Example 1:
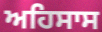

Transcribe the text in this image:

ਅਹਿਸਾਸ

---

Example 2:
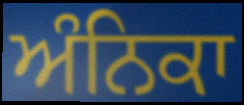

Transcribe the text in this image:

ਅੰਨਿਕਾ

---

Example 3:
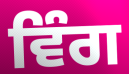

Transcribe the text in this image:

ਵਿੰਗ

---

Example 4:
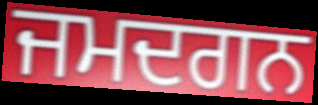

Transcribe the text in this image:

ਜਮਦਗਨ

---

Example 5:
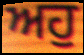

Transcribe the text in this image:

ਅਹੁ